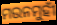
ମଉନମୁହୀଁ